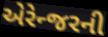
એરેન્જરની